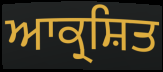
ਆਕ੍ਰਸ਼ਿਤ